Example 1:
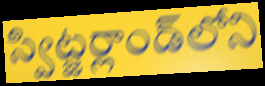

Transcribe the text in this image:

స్విట్జర్లాండ్‌లోని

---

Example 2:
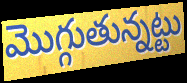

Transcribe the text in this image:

మొగ్గుతున్నట్టు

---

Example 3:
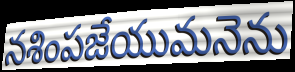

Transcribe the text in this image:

నశింపజేయుమనెను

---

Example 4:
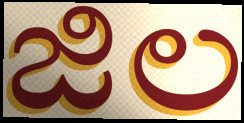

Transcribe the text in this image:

జిల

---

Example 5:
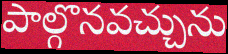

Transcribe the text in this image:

పాల్గొనవచ్చును